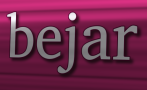
bejar